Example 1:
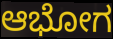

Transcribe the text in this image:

ಆಭೋಗ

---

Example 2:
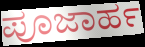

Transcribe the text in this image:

ಪೂಜಾರ್ಹ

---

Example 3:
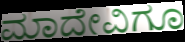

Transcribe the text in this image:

ಮಾದೇವಿಗೂ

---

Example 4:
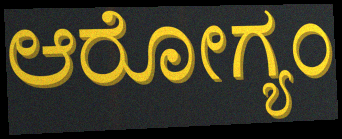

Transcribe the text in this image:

ಆರೋಗ್ಯಂ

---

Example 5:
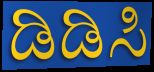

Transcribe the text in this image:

ಡಿಡಿಸಿ